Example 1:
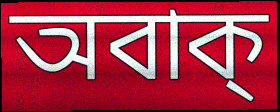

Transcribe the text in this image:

অবাক্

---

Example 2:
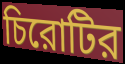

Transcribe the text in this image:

চিরোটির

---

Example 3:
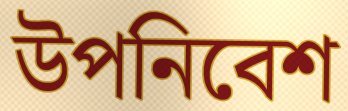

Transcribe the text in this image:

উপনিবেশ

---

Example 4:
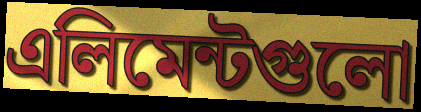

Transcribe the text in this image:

এলিমেন্টগুলো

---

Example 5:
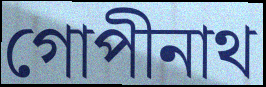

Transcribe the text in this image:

গোপীনাথ